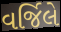
વર્જિલે